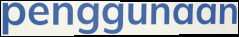
penggunaan